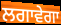
ਲਗਾਵੇਗਾ